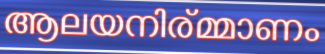
ആലയനിര്മ്മാണം